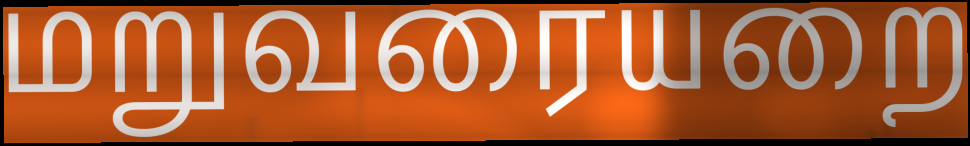
மறுவரையறை